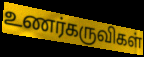
உணர்கருவிகள்